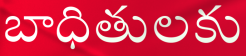
బాధితులకు